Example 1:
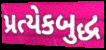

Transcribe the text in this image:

પ્રત્યેકબુદ્ધ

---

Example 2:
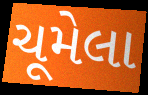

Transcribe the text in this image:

ચૂમેલા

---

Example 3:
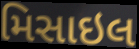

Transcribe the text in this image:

મિસાઇલ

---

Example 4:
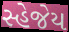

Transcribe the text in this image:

સ્હેજેય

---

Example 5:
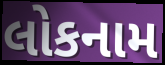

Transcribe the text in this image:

લોકનામ